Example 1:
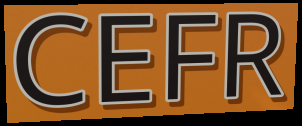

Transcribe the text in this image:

CEFR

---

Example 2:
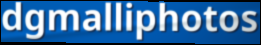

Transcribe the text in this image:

dgmalliphotos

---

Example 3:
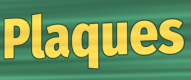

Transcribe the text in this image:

Plaques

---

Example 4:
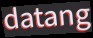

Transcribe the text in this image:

datang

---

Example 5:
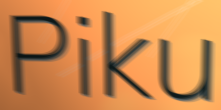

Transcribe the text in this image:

Piku